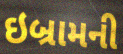
ઇબ્રામની